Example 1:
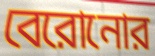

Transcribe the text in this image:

বেরোনোর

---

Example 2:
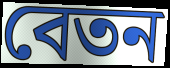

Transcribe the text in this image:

বেতন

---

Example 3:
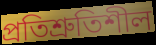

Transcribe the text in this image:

প্রতিশ্রুতিশীল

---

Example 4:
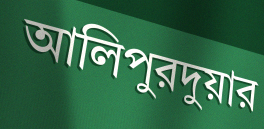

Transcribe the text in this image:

আলিপুরদুয়ার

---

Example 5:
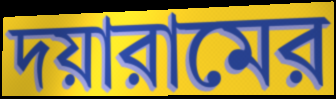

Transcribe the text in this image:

দয়ারামের